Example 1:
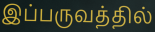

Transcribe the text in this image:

இப்பருவத்தில்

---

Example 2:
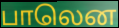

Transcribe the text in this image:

பாலென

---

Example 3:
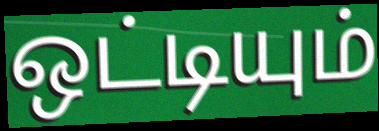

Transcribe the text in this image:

ஒட்டியும்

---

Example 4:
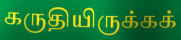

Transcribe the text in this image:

கருதியிருக்கக்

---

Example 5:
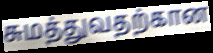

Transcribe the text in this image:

சுமத்துவதற்கான